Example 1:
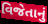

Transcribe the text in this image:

વિજેતાનું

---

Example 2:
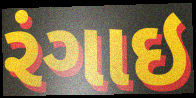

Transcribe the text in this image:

રંગાઇ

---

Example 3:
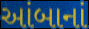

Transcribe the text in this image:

આંબાનાં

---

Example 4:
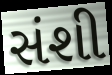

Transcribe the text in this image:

સંશી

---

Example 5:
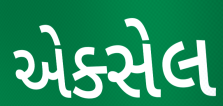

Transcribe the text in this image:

એક્સેલ